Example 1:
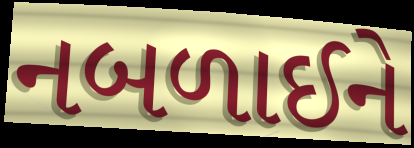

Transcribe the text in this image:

નબળાઈને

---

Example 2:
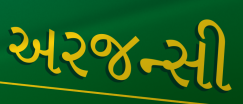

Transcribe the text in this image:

અરજન્સી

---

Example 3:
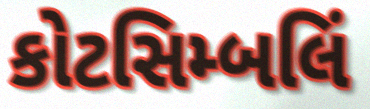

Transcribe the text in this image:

કોટસિમ્બલિં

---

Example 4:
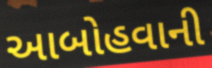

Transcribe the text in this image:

આબોહવાની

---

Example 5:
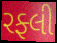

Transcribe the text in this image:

રફ્લી